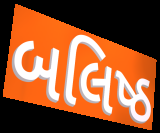
બલિષ્ઠ